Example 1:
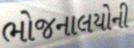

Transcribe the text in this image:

ભોજનાલયોની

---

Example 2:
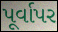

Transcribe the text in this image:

પૂર્વાપર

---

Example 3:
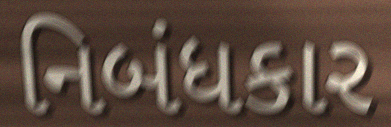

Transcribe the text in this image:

નિબંધકાર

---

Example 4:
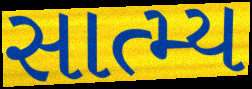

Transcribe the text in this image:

સાત્મ્ય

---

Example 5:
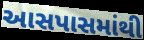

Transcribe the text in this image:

આસપાસમાંથી